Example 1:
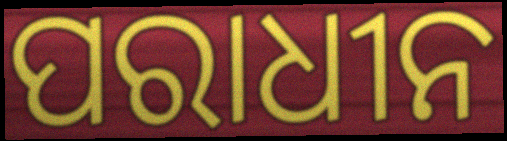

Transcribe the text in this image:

ପରାଧୀନ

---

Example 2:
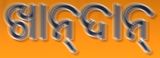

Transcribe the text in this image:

ଖାନ୍‍ଦାନ୍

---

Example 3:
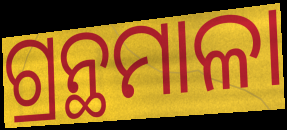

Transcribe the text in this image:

ଗ୍ରନ୍ଥମାଳା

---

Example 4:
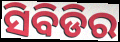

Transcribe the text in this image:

ସିବିଡିର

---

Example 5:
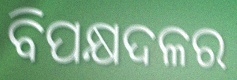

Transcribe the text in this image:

ବିପକ୍ଷଦଳର